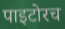
पाइटोरच